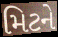
મિટને